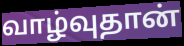
வாழ்வுதான்